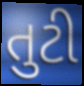
તુટી